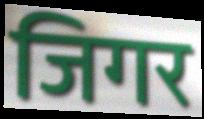
जिगर